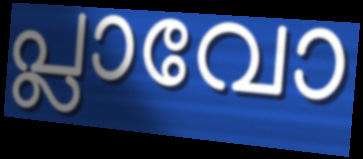
പ്ലാവോ